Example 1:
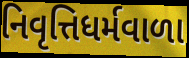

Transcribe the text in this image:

નિવૃત્તિધર્મવાળા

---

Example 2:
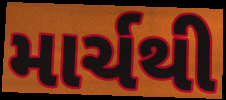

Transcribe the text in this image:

માર્ચથી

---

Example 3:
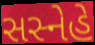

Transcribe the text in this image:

સસ્નેહે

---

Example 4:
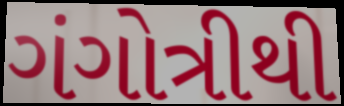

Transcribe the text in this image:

ગંગોત્રીથી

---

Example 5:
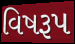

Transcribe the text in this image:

વિષરૂપ